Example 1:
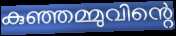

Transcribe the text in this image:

കുഞ്ഞമ്മുവിന്റെ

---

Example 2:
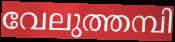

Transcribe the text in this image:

വേലുത്തമ്പി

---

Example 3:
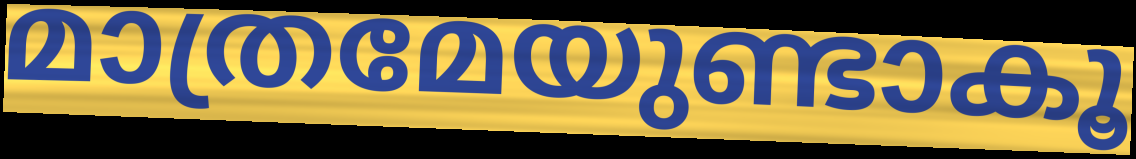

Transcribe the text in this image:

മാത്രമേയുണ്ടാകൂ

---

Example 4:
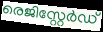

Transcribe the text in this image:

രെജിസ്റ്റേർഡ്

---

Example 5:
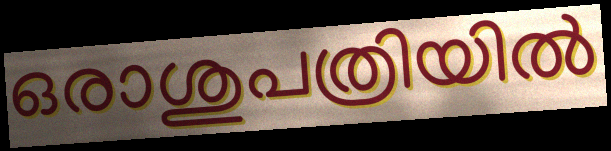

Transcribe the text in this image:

ഒരാശുപത്രിയിൽ